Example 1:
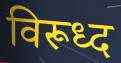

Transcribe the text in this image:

विरूध्द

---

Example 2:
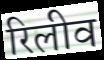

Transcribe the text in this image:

रिलीव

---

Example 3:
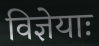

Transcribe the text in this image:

विज्ञेयाः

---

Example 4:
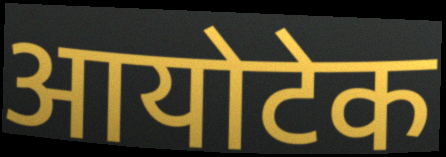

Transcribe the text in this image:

आयोटेक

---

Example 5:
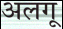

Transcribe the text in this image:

अलगू